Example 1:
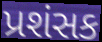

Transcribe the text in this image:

પ્રશંસક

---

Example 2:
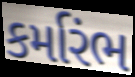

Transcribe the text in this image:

કર્મારંભ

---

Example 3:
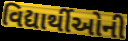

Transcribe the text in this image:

વિદ્યાર્થીઓની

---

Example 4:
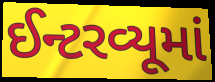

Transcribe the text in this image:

ઈન્ટરવ્યૂમાં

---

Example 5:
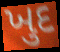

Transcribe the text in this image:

ખુદ